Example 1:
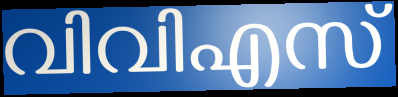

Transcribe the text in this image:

വിവിഎസ്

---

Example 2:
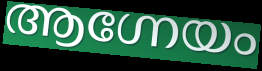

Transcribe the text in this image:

ആഗ്നേയം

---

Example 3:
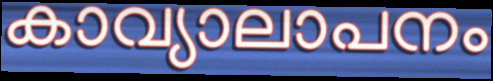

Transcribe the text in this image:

കാവ്യാലാപനം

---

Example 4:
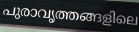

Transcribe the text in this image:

പുരാവൃത്തങ്ങളിലെ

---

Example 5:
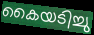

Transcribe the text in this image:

കൈയടിച്ചു